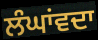
ਲੰਘਾਂਵਦਾ